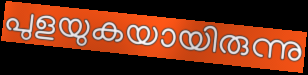
പുളയുകയായിരുന്നു